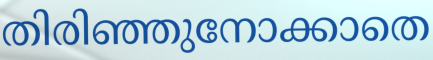
തിരിഞ്ഞുനോക്കാതെ